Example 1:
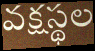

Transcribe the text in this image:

వక్షస్థల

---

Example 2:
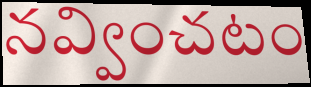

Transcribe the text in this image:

నవ్వించటం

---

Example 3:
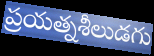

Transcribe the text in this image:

ప్రయత్నశీలుడగు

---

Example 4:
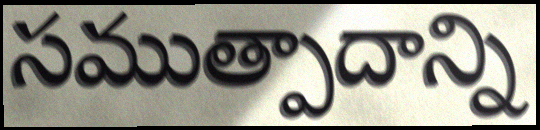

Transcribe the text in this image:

సముత్పాదాన్ని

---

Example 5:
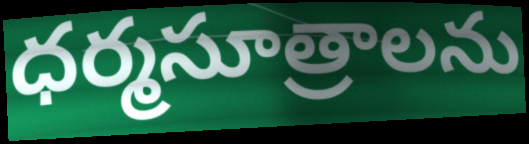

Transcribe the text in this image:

ధర్మసూత్రాలను